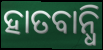
ହାତବାନ୍ଧି